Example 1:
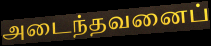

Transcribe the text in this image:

அடைந்தவனைப்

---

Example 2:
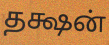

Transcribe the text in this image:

தக்ஷன்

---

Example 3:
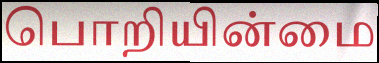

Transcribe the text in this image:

பொறியின்மை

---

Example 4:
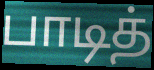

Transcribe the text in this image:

பாடித்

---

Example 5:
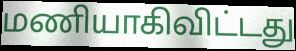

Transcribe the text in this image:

மணியாகிவிட்டது